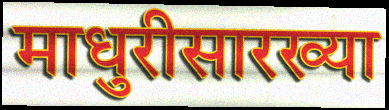
माधुरीसारख्या